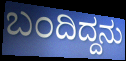
ಬಂದಿದ್ದನು